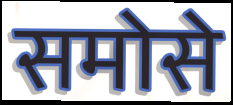
समोसे